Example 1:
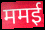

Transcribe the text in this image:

ममई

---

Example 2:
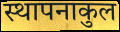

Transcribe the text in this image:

स्थापनाकुल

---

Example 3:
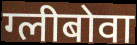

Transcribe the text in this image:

ग्लीबोवा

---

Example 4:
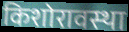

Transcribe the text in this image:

किशोरावस्था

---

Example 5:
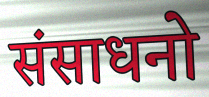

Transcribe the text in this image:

संसाधनो